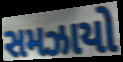
સમઝાયો